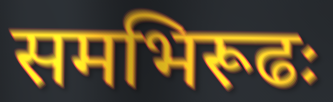
समभिरूढः